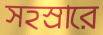
সহস্রারে